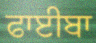
ਫਾਈਬਾ